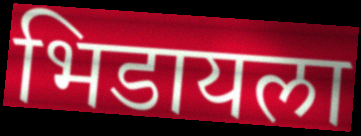
भिडायला